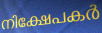
നിക്ഷേപകർ